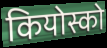
कियोस्को